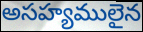
అసహ్యములైన